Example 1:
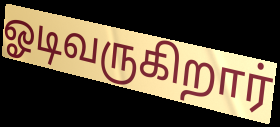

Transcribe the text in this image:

ஓடிவருகிறார்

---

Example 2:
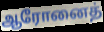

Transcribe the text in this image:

ஆரோனைத்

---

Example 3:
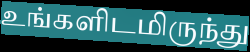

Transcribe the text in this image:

உங்களிடமிருந்து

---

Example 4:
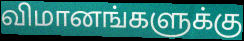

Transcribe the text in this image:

விமானங்களுக்கு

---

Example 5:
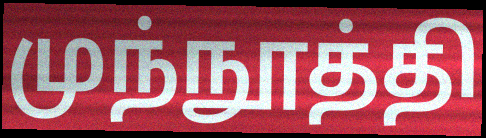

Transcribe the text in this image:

முந்நூத்தி